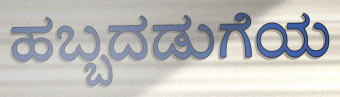
ಹಬ್ಬದಡುಗೆಯ